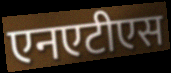
एनएटीएस